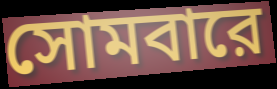
সোমবারে